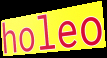
holeo